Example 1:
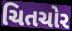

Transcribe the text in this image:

ચિતચોર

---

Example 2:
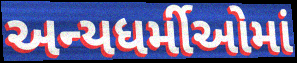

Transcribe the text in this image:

અન્યધર્મીઓમાં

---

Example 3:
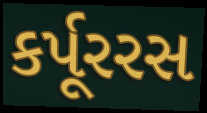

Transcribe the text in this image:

કર્પૂરરસ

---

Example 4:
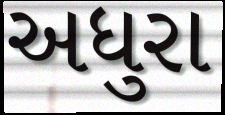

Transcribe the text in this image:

અધુરા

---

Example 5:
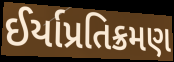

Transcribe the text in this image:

ઈર્યાપ્રતિક્રમણ